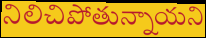
నిలిచిపోతున్నాయని